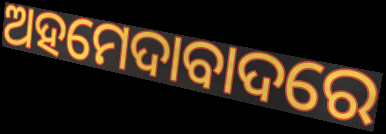
ଅହମେଦାବାଦରେ